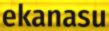
ekanasu